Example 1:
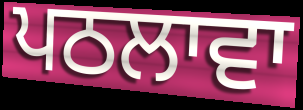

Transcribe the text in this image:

ਪਠਲਾਵਾ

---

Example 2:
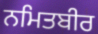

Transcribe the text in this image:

ਨਮਿਤਬੀਰ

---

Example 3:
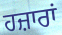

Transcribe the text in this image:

ਹਜ਼ਾਰਾਂ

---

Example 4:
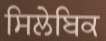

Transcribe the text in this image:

ਸਿਲੇਬਿਕ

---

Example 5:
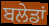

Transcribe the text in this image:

ਬਲੇਡਾਂ